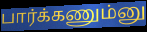
பார்க்கணும்னு